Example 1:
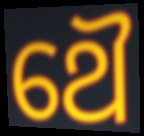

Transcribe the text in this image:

ଥୈ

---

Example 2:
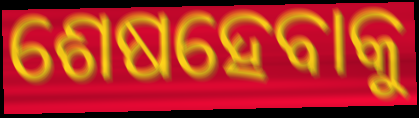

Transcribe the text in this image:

ଶେଷହେବାକୁ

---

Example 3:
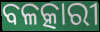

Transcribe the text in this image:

ବଳତ୍କାରୀ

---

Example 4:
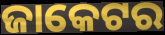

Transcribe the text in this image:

ଜାକେଟର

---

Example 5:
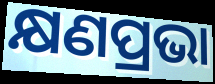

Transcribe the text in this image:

କ୍ଷଣପ୍ରଭା